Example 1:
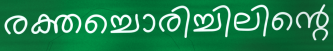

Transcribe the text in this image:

രക്തച്ചൊരിച്ചിലിന്റെ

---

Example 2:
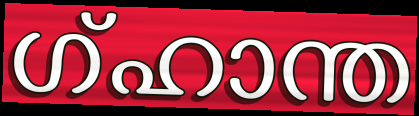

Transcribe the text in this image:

ഗ്ഹാന്ത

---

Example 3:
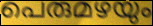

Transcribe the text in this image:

പെരുമഴയും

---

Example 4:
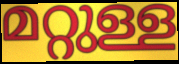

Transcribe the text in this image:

മറ്റുള്ള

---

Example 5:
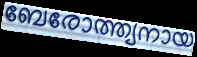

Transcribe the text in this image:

ബേരോത്ത്യനായ